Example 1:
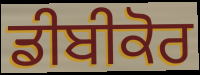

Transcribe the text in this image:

ਡੀਬੀਕੋਰ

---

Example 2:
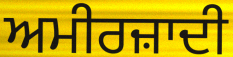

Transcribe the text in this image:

ਅਮੀਰਜ਼ਾਦੀ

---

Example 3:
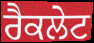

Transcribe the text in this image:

ਰੈਕਲੇਟ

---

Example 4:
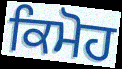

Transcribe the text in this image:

ਕਿਮੋਹ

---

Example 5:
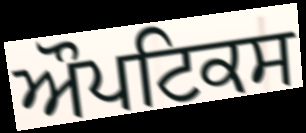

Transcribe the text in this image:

ਔਪਟਿਕਸ